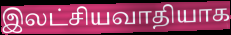
இலட்சியவாதியாக